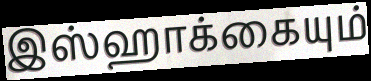
இஸ்ஹாக்கையும்